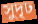
সুদৃঢ